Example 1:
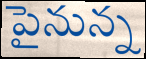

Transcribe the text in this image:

పైనున్న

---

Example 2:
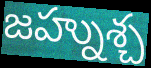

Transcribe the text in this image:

జహ్నుశ్చ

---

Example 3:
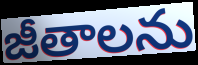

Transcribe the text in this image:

జీతాలను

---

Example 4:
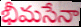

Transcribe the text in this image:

భీమసేనా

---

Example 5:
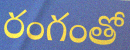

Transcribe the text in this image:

రంగంతో